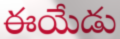
ఈయేడు